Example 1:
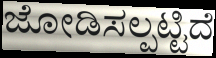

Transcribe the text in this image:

ಜೋಡಿಸಲ್ಪಟ್ಟಿದೆ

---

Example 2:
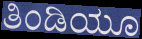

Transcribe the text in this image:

ತಿಂಡಿಯೂ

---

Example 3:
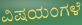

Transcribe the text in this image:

ವಿಷಯಂಗಳೆ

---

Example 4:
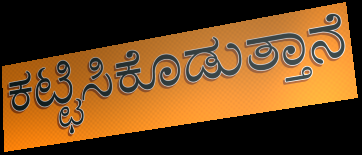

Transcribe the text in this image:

ಕಟ್ಟಿಸಿಕೊಡುತ್ತಾನೆ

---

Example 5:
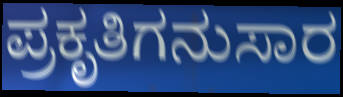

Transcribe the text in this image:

ಪ್ರಕೃತಿಗನುಸಾರ